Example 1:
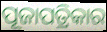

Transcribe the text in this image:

ପୂଜାପତ୍ରିକାର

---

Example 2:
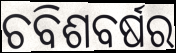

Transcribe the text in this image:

ଚବିଶବର୍ଷର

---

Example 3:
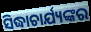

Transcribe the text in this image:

ସିଦ୍ଧାଚାର୍ଯ୍ୟଙ୍କର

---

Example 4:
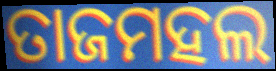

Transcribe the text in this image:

ତାଜମହଲ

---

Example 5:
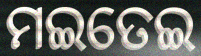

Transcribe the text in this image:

ମଇତେଇ